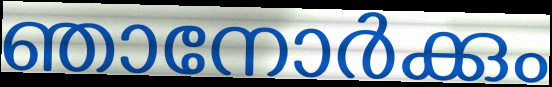
ഞാനോർക്കും